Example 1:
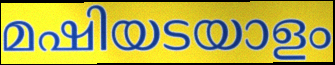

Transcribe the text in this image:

മഷിയടയാളം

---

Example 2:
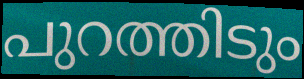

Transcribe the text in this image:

പുറത്തിടും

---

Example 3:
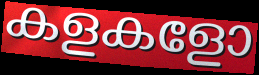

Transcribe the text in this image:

കളകളോ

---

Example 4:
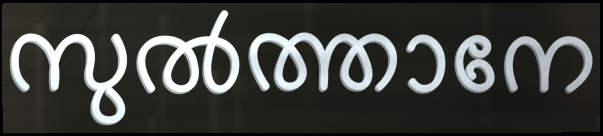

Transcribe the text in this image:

സുൽത്താനേ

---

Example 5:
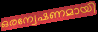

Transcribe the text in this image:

ഒരന്വേഷണമായി